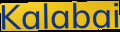
Kalabai